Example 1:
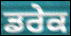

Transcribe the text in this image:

ਡਰੇਕ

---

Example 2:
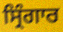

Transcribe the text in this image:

ਸ੍ਰਿੰਗਾਰ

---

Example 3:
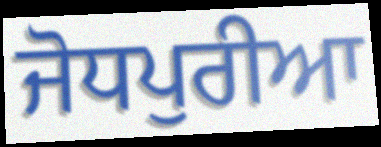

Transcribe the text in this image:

ਜੋਧਪੁਰੀਆ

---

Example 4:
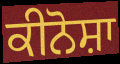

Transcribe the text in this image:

ਕੀਨੋਸ਼ਾ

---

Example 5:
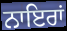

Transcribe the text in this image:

ਨਾਇਰਾਂ